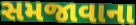
સમજાવાના